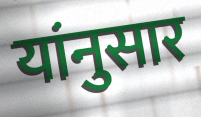
यांनुसार